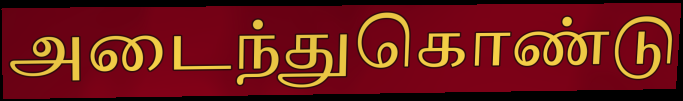
அடைந்துகொண்டு